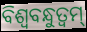
ବିଶ୍ଵବନ୍ଧୁତ୍ଵମ୍